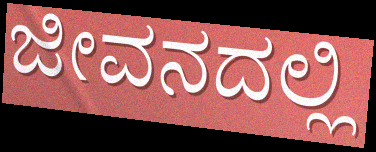
ಜೀವನದಲ್ಲಿ